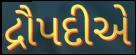
દ્રૌપદીએ